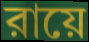
রায়ে